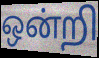
ஒன்றி